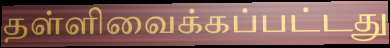
தள்ளிவைக்கப்பட்டது